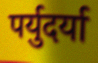
पर्युदर्या